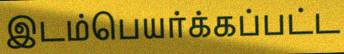
இடம்பெயர்க்கப்பட்ட